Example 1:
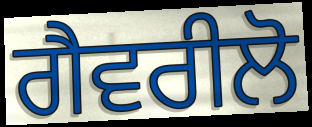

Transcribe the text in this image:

ਗੈਵਰੀਲੋ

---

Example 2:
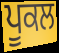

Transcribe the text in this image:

ਪੂਕਲ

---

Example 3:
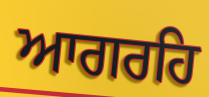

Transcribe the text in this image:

ਆਗਰਹਿ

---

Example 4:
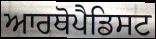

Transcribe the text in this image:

ਆਰਥੋਪੈਡਿਸਟ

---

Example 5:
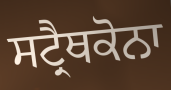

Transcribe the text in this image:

ਸਟ੍ਰੈਥਕੋਨਾ